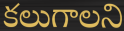
కలుగాలని